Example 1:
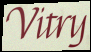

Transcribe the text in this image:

Vitry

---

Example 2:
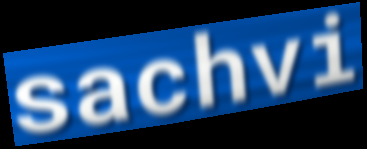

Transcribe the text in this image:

sachvi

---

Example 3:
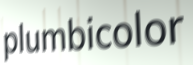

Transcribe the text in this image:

plumbicolor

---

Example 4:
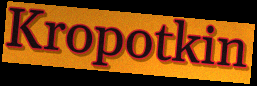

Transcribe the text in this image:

Kropotkin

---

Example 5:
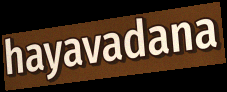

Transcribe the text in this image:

hayavadana